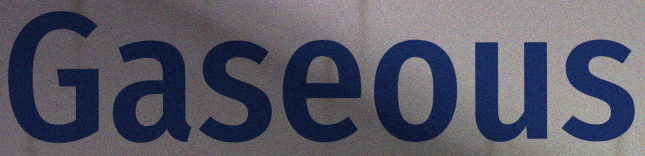
Gaseous